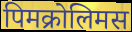
पिमक्रोलिमस